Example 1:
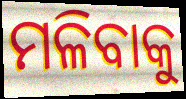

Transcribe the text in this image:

ମଳିବାକୁ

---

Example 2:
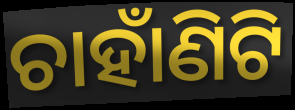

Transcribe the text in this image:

ଚାହାଁଣିଟି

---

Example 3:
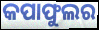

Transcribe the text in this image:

କପାଫୁଲର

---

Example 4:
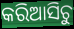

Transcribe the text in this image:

କରିଆସିଚୁ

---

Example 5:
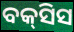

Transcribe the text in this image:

ବକ୍‍ସିସ